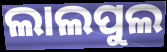
ଲାଲପୁଲ